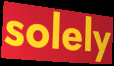
solely